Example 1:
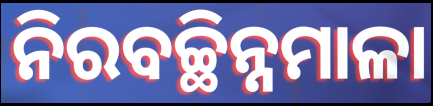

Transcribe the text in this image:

ନିରବଚ୍ଛିନ୍ନମାଳା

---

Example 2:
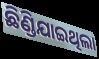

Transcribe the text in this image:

ଛିଣ୍ଡିଯାଇଥିଲା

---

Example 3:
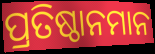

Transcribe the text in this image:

ପ୍ରତିଷ୍ଠାନମାନ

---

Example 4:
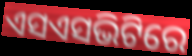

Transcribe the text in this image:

ଏସଏସଭିଟିରେ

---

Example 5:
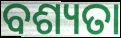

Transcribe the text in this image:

ବଶ୍ୟତା